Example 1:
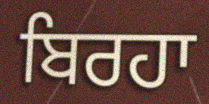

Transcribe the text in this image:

ਬਿਰਹਾ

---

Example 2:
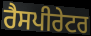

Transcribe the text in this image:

ਰੈਸਪੀਰੇਟਰ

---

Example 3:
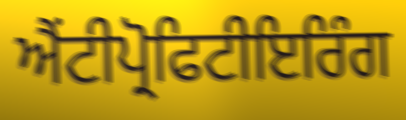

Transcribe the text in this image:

ਐਂਟੀਪ੍ਰੋਫਿਟੀਇਰਿੰਗ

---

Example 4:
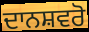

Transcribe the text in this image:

ਦਾਨਸ਼ਵਰੋ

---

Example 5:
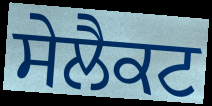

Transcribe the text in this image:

ਸੇਲੈਕਟ